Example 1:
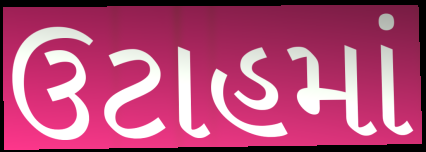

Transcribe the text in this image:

ઉટાહમાં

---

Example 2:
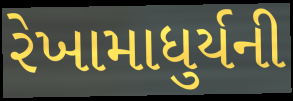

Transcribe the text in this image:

રેખામાધુર્યની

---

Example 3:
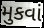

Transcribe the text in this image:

મુકવાં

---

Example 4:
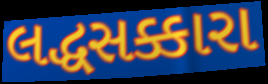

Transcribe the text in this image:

લદ્ધસક્કારા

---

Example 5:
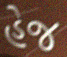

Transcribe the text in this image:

હેજ